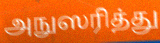
அநுஸரித்து